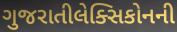
ગુજરાતીલેક્સિકોનની